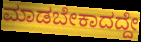
ಮಾಡಬೇಕಾದದ್ದೇ